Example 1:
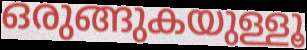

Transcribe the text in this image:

ഒരുങ്ങുകയുള്ളൂ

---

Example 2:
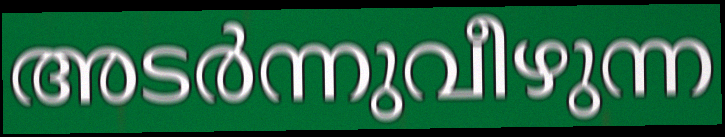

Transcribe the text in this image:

അടർന്നുവീഴുന്ന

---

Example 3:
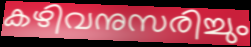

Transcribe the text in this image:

കഴിവനുസരിച്ചും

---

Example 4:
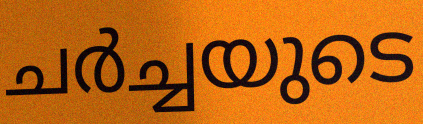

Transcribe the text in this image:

ചർച്ചയുടെ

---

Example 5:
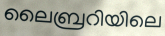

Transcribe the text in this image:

ലൈബ്രറിയിലെ